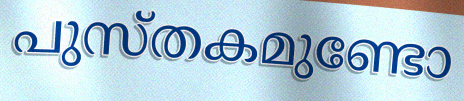
പുസ്തകമുണ്ടോ